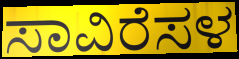
ಸಾವಿರೆಸಳ